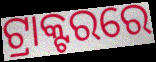
ଟ୍ରାକ୍ଟରରେ